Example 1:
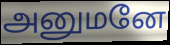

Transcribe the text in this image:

அனுமனே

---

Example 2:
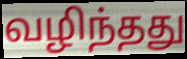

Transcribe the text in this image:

வழிந்தது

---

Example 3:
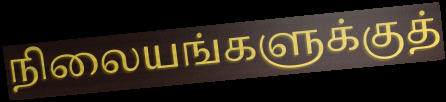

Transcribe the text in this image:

நிலையங்களுக்குத்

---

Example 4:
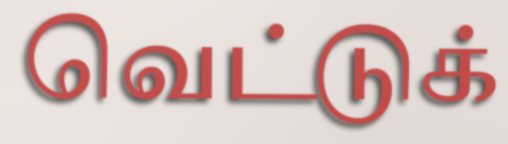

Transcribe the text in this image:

வெட்டுக்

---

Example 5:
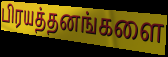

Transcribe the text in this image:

பிரயத்தனங்களை